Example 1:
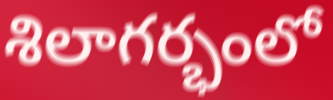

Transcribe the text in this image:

శిలాగర్భంలో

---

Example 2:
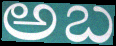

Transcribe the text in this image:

అబ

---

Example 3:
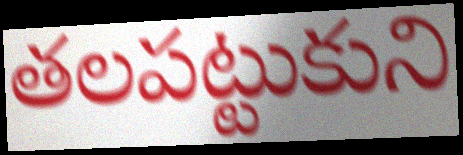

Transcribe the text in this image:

తలపట్టుకుని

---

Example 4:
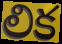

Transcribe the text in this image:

లిక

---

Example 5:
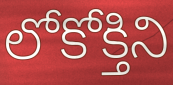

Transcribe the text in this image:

లోకోక్తిని